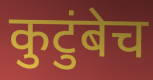
कुटुंबेच